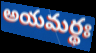
అయమర్థః